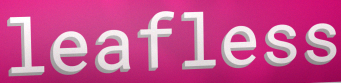
leafless